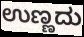
ಉಣ್ಣದು